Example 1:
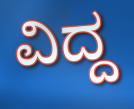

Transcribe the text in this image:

ವಿದ್ದ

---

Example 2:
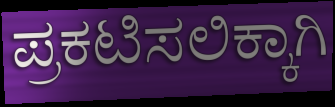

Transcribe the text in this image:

ಪ್ರಕಟಿಸಲಿಕ್ಕಾಗಿ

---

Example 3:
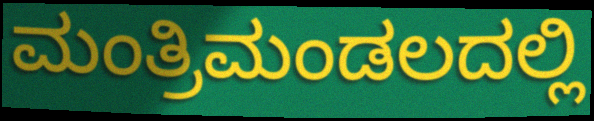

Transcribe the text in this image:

ಮಂತ್ರಿಮಂಡಲದಲ್ಲಿ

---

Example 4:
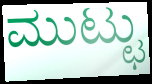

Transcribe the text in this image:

ಮುಟ್ಟು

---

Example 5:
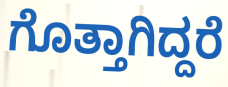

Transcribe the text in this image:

ಗೊತ್ತಾಗಿದ್ದರೆ